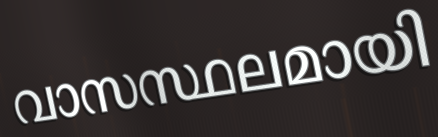
വാസസ്ഥലമായി